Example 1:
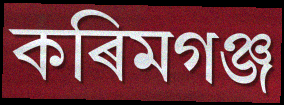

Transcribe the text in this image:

কৰিমগঞ্জ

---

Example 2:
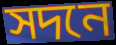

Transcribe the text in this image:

সদনে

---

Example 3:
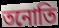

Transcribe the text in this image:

তনোতি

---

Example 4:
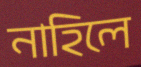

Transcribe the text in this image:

নাহিলে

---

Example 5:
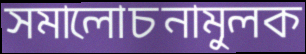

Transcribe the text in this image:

সমালোচনামুলক